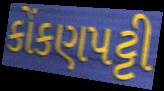
કોંકણપટ્ટી